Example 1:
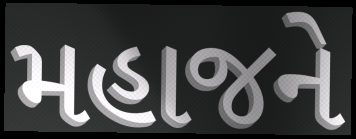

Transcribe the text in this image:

મહાજને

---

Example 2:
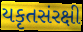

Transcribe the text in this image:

યકૃતસંરક્ષી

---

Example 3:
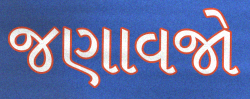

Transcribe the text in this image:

જણાવજો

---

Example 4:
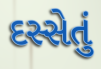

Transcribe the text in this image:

દસ્સેતું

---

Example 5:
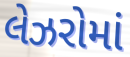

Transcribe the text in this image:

લેઝરોમાં